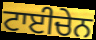
ਟਾਈਚੇਨ